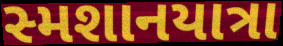
સ્મશાનયાત્રા